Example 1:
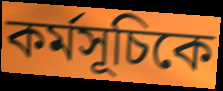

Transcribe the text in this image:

কর্মসূচিকে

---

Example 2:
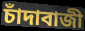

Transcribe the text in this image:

চাঁদাবাজী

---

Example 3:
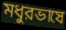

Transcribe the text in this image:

মধুরভাষে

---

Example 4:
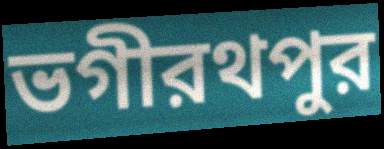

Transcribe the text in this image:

ভগীরথপুর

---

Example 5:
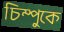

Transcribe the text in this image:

চিম্পুকে